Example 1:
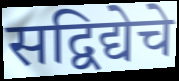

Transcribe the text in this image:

सद्विद्येचे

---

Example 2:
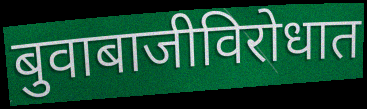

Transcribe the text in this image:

बुवाबाजीविरोधात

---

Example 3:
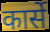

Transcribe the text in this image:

कार्से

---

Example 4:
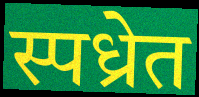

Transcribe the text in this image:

स्पध्रेत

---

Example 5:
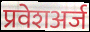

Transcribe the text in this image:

प्रवेशअर्ज